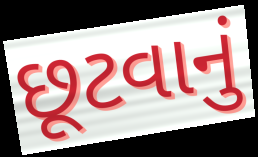
છૂટવાનું